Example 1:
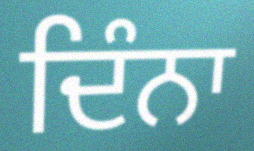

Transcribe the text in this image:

ਦਿੰਨਾ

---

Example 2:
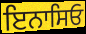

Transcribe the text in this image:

ਇਨਾਸਿਓ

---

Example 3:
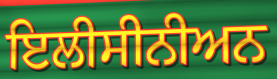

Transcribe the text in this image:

ਇਲੀਸੀਨੀਅਨ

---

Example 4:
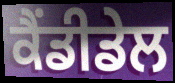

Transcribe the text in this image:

ਕੈਂਡੀਡੇਲ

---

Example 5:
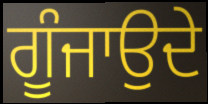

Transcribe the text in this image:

ਗੂੰਜਾਉਦੇ